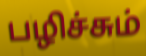
பழிச்சும்